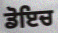
ਡੋਇਚ